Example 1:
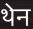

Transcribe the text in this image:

थेन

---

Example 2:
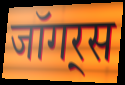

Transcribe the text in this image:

जॉगर्स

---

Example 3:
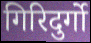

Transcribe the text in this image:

गिरिदुर्गो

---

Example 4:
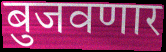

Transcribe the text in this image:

बुजवणार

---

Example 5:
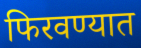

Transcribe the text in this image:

फिरवण्यात